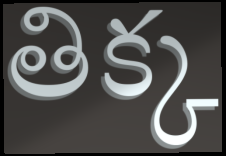
తిక్క